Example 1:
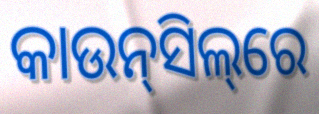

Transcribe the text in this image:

କାଉନ୍‌ସିଲ୍‌ରେ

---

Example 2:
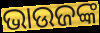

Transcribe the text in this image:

ଭାଉଜଙ୍କ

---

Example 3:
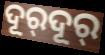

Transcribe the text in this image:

ଦୂର୍‌ଦୂର୍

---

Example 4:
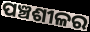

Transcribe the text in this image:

ପଞ୍ଚଶୀଳର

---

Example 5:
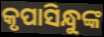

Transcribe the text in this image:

କୃପାସିନ୍ଧୁଙ୍କ